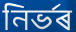
নিৰ্ভৰ